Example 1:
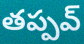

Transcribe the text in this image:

తప్పవ్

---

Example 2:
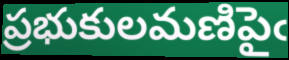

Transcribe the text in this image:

ప్రభుకులమణిపైఁ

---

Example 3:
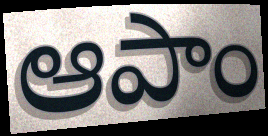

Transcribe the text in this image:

ఆపాం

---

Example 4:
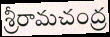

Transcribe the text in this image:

శ్రీరామచంద్ర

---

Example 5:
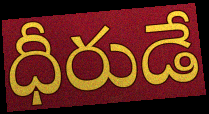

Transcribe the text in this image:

ధీరుడే